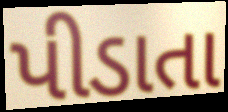
પીડાતા